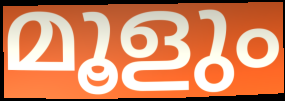
മൂളും